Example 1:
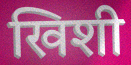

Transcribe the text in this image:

खिशी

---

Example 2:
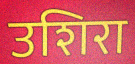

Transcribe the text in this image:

उशिरा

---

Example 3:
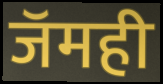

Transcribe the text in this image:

जॅमही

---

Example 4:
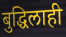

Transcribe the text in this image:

बुद्धिलाही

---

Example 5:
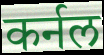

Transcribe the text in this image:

कर्नल